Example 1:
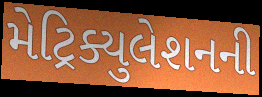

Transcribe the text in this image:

મેટ્રિક્યુલેશનની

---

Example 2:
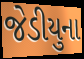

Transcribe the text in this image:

જેડીયુના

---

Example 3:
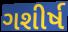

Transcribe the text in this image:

ગશીર્ષ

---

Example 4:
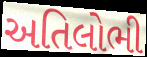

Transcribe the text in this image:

અતિલોભી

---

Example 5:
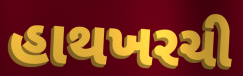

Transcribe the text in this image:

હાથખરચી